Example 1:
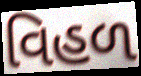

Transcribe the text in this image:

વિહળ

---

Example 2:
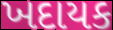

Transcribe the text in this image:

ખદાયક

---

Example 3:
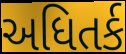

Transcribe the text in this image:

અધિતર્ક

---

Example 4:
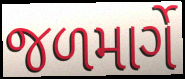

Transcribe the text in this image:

જળમાર્ગે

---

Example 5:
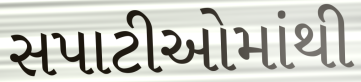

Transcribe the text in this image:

સપાટીઓમાંથી